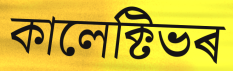
কালেক্টিভৰ